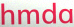
hmda